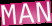
MAN